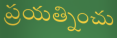
ప్రయత్నించు